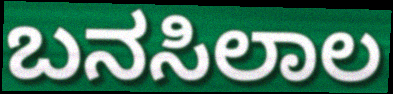
ಬನಸಿಲಾಲ